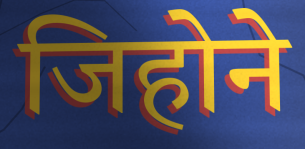
जिहोने